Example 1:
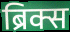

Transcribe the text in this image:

ब्रिक्स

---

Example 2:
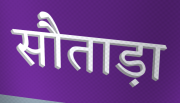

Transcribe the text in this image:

सौताड़ा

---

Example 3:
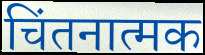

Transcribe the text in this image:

चिंतनात्मक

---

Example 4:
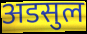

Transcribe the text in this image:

अडसुल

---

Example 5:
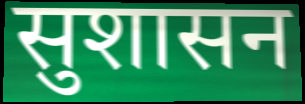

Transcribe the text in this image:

सुशासन